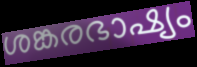
ശങ്കരഭാഷ്യം